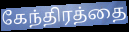
கேந்திரத்தை